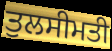
ਤੁਲਸੀਮਤੀ